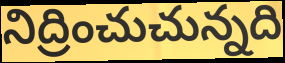
నిద్రించుచున్నది